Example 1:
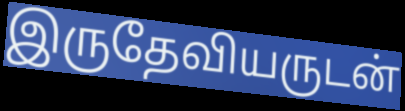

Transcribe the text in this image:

இருதேவியருடன்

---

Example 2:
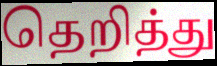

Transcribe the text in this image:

தெறித்து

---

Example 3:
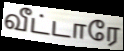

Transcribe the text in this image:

வீட்டாரே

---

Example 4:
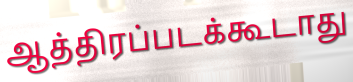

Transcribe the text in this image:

ஆத்திரப்படக்கூடாது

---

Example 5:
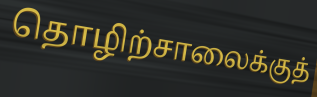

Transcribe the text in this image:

தொழிற்சாலைக்குத்